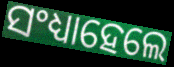
ସଂଧ୍ୟାହେଲେ